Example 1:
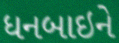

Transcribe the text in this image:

ધનબાઇને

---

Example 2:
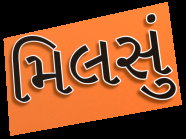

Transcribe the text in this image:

મિલસું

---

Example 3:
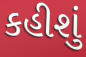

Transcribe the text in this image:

કહીશું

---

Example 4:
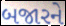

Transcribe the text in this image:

બજારને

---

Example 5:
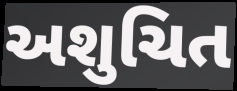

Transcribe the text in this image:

અશુચિત